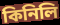
কিনিলি